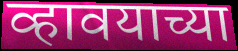
व्हावयाच्या